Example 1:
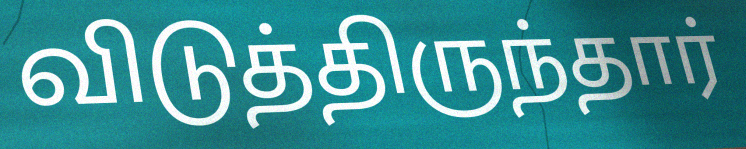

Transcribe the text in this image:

விடுத்திருந்தார்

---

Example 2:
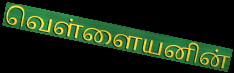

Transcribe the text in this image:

வெள்ளையனின்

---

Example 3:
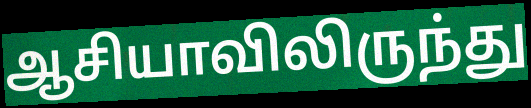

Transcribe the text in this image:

ஆசியாவிலிருந்து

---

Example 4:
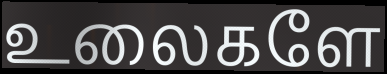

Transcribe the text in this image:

உலைகளே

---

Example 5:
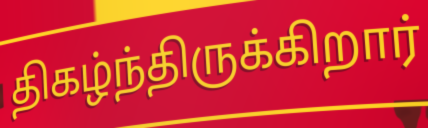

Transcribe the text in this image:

திகழ்ந்திருக்கிறார்